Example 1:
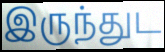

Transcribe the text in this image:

இருந்துட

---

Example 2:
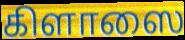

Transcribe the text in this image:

கிளாஸை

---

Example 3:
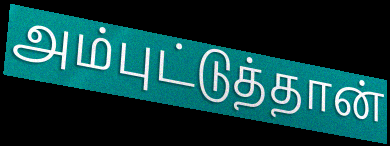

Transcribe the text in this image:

அம்புட்டுத்தான்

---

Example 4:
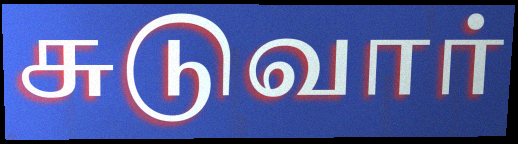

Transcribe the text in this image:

சுடுவார்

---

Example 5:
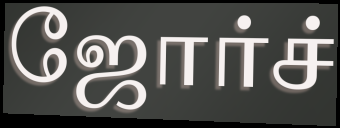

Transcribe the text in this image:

ஜோர்ச்